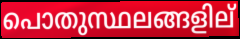
പൊതുസ്ഥലങ്ങളില്